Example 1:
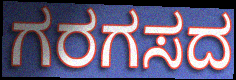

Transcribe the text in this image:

ಗರಗಸದ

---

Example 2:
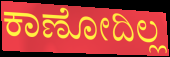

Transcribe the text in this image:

ಕಾಣೋದಿಲ್ಲ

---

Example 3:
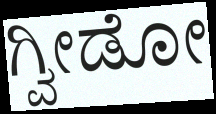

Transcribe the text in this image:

ಗ್ವೀಡೋ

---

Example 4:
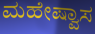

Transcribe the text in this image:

ಮಹೇಷ್ವಾಸ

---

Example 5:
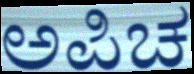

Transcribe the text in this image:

ಅಪಿಚ